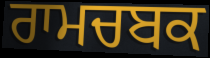
ਰਾਮਚਬਕ